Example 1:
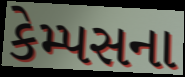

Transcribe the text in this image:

કેમ્પસના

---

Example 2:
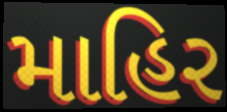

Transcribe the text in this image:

માહિર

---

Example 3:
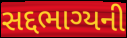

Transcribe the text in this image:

સદ્દભાગ્યની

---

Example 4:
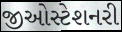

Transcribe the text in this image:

જીઓસ્ટેશનરી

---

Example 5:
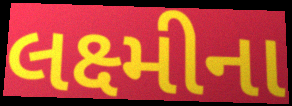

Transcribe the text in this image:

લક્ષ્મીના